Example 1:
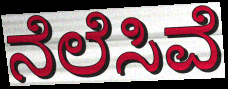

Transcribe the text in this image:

ನೆಲೆಸಿವೆ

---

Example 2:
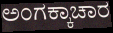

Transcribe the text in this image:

ಅಂಗಕ್ಕಾಚಾರ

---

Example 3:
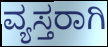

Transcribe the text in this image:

ವ್ಯಸ್ತರಾಗಿ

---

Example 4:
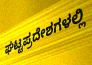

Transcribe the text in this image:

ಘಟ್ಟಪ್ರದೇಶಗಳಲ್ಲಿ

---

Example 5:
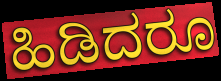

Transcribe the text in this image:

ಹಿಡಿದರೂ